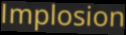
Implosion